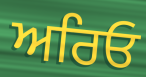
ਅਰਿਓ